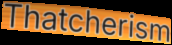
Thatcherism